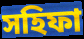
সহিফা